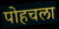
पोहचला